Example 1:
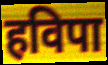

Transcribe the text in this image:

हविपा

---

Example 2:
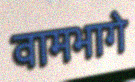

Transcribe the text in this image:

वामभागे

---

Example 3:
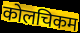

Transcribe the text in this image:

कोलचिकम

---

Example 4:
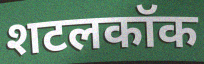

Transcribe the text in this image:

शटलकॉक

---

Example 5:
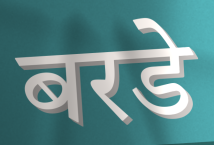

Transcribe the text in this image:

बरडे